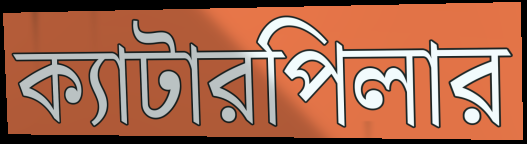
ক্যাটারপিলার